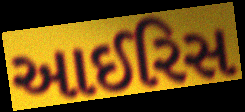
આઈરિસ